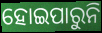
ହୋଇପାରୁନି